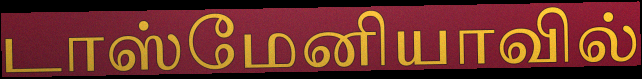
டாஸ்மேனியாவில்